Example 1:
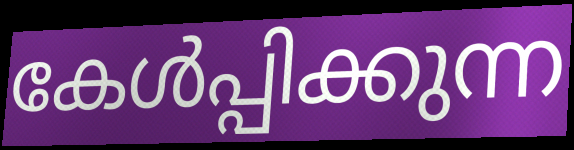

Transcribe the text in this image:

കേൾപ്പിക്കുന്ന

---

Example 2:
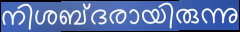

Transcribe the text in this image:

നിശബ്ദരായിരുന്നു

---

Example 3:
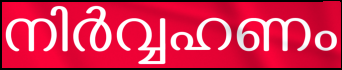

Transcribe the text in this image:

നിർവ്വഹണം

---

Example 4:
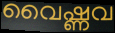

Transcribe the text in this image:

വൈഷ്ണവ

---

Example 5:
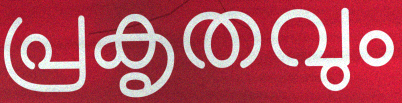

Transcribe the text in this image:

പ്രകൃതവും